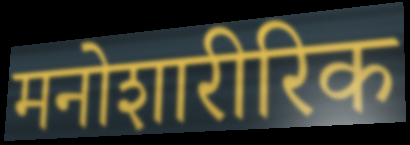
मनोशारीरिक